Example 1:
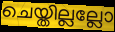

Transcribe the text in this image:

ചെയ്തില്ലല്ലോ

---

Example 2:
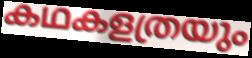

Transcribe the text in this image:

കഥകളത്രയും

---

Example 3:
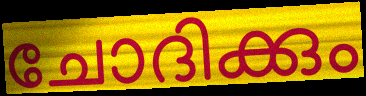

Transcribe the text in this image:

ചോദിക്കും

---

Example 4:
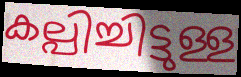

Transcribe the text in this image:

കല്പിച്ചിട്ടുള്ള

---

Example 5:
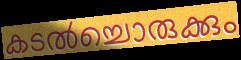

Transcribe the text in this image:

കടൽച്ചൊരുക്കും